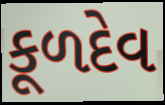
કૂળદેવ